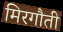
मिरगौती